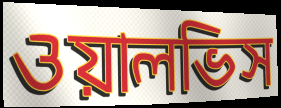
ওয়ালভিস